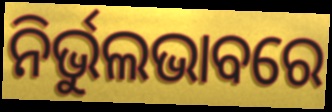
ନିର୍ଭୁଲଭାବରେ